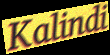
Kalindi